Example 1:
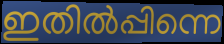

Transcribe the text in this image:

ഇതിൽപ്പിന്നെ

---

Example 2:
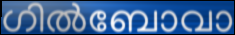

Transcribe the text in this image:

ഗിൽബോവാ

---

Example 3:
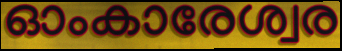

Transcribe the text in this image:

ഓംകാരേശ്വര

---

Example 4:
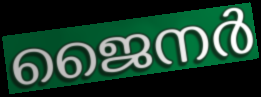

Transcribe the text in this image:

ജൈനർ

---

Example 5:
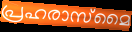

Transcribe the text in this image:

പ്രഹരാസ്മൈ